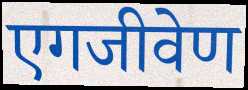
एगजीवेण